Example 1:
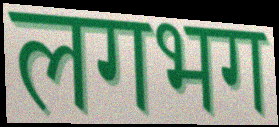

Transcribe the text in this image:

लगभग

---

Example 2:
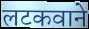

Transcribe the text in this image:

लटकवाने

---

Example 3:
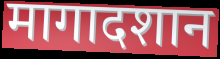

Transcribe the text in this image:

मागादशान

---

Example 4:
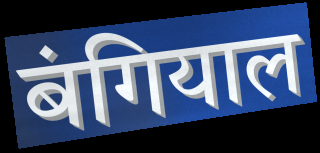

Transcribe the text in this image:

बंगियाल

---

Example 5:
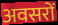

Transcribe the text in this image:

अवसरों